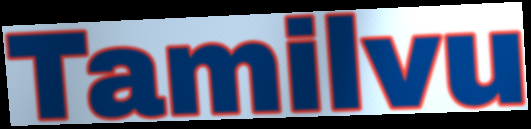
Tamilvu